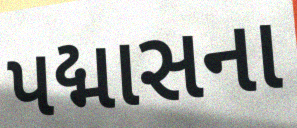
પદ્માસના